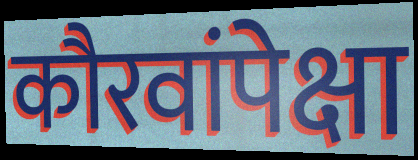
कौरवांपेक्षा